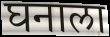
घनाला